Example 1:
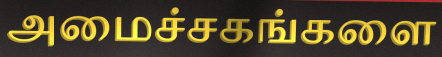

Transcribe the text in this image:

அமைச்சகங்களை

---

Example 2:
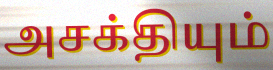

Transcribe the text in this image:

அசக்தியும்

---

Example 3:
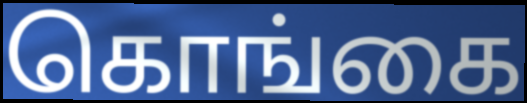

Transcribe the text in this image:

கொங்கை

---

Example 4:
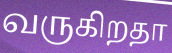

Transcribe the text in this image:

வருகிறதா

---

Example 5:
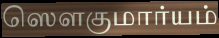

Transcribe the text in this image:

ஸௌகுமார்யம்